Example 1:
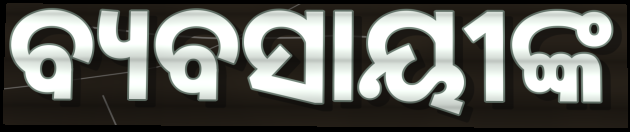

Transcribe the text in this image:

ବ୍ୟବସାୟୀଙ୍କ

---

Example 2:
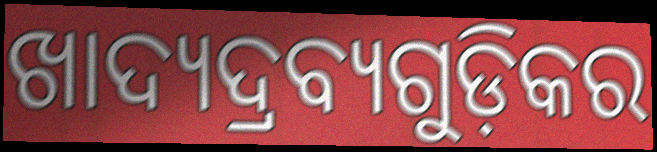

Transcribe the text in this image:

ଖାଦ୍ୟଦ୍ରବ୍ୟଗୁଡ଼ିକର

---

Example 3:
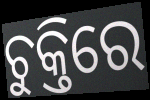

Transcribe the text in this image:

ଚୁକ୍ତିରେ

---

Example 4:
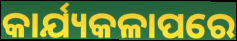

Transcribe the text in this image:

କାର୍ଯ୍ୟକଳାପରେ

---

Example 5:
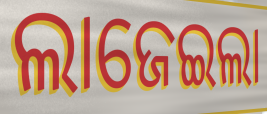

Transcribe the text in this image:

ଲାଜେଇଲା